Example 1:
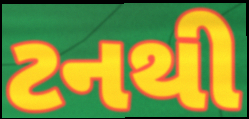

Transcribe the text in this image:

ટનથી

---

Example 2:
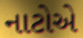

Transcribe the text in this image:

નાટોએ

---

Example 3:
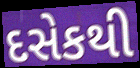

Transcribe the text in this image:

દસેકથી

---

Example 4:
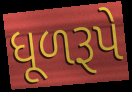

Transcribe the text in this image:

ધૂળરૂપે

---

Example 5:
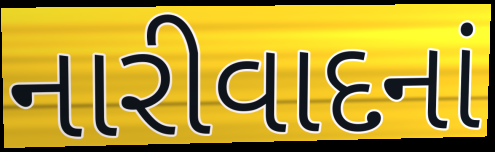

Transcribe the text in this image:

નારીવાદનાં